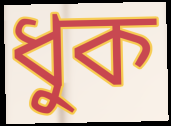
ধুক